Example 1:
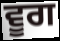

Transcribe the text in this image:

ਵੂਗ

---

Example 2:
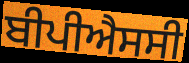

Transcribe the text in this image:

ਬੀਪੀਐਸਸੀ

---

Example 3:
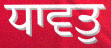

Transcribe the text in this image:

ਧਾਵਤੁ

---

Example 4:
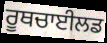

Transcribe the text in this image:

ਰੂਥਚਾਈਲਡ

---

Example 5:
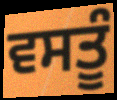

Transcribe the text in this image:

ਵਸਤੂੰ